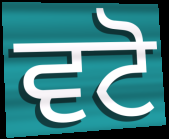
ਵਟੋ